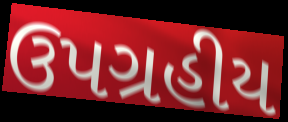
ઉપગ્રહીય